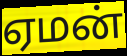
ஏமன்